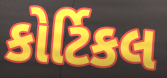
કોર્ટિકલ